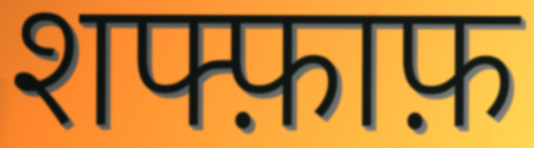
शफ्फ़ाफ़